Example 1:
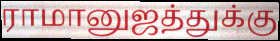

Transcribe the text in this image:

ராமானுஜத்துக்கு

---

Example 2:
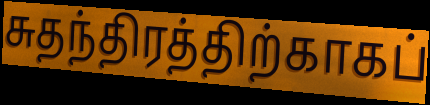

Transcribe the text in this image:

சுதந்திரத்திற்காகப்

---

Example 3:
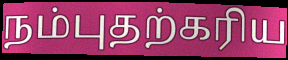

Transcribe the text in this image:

நம்புதற்கரிய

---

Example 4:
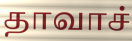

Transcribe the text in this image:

தாவாச்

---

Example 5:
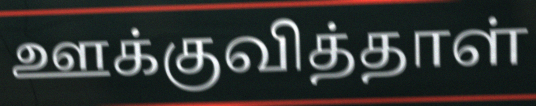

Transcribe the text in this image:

ஊக்குவித்தாள்